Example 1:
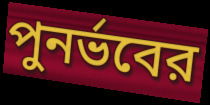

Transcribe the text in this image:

পুনর্ভবের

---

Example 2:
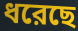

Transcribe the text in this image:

ধরেছে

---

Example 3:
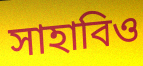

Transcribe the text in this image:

সাহাবিও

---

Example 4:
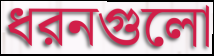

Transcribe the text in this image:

ধরনগুলো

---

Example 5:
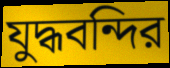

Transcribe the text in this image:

যুদ্ধবন্দির